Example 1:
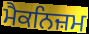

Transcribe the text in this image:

ਮੈਕਨਿਜ਼ਮ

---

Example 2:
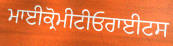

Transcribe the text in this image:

ਮਾਈਕ੍ਰੋਮੀਟੀਓਰਾਈਟਸ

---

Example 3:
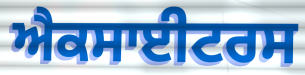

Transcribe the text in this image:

ਐਕਸਾਈਟਰਸ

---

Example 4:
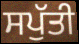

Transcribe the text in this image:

ਸਪੁੱਤੀ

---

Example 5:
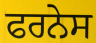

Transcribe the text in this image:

ਫਰਨੇਸ